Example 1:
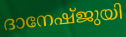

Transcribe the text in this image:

ദാനേഷ്ജുയി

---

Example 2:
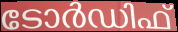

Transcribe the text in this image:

ടോർഡിഫ്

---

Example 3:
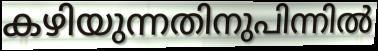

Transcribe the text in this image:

കഴിയുന്നതിനുപിന്നിൽ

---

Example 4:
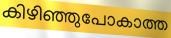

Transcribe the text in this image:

കിഴിഞ്ഞുപോകാത്ത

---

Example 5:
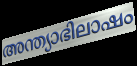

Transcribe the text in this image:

അന്ത്യാഭിലാഷം